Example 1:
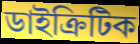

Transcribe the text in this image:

ডাইক্ৰিটিক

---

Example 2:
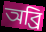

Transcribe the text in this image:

অব্ৰি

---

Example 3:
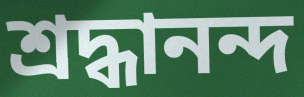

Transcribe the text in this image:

শ্ৰদ্ধানন্দ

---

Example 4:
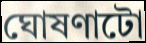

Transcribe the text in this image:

ঘোষণাটো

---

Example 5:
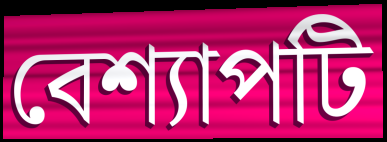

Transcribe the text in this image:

বেশ্যাপটি